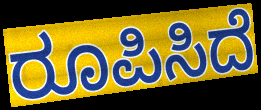
ರೂಪಿಸಿದೆ